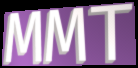
MMT